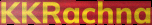
KKRachna